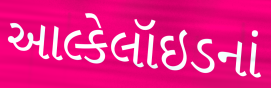
આલ્કેલૉઇડનાં